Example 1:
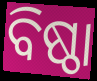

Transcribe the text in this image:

ବିଷ୍ଠା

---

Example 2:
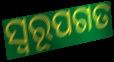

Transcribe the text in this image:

ସ୍ଵରୂପଗତ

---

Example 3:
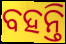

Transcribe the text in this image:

ବହନ୍ତି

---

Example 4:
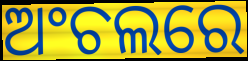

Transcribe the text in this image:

ଅଂଚଲରେ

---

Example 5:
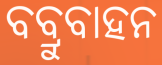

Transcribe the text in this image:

ବବ୍ରୁବାହନ